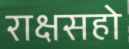
राक्षसहो